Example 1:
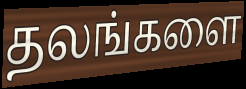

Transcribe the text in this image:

தலங்களை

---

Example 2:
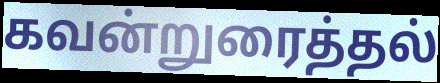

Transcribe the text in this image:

கவன்றுரைத்தல்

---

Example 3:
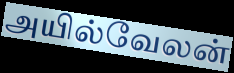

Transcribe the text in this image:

அயில்வேலன்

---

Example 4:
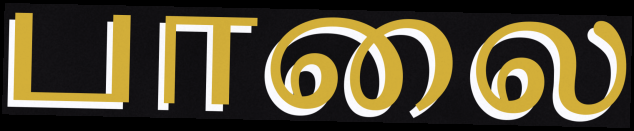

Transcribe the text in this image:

பாலை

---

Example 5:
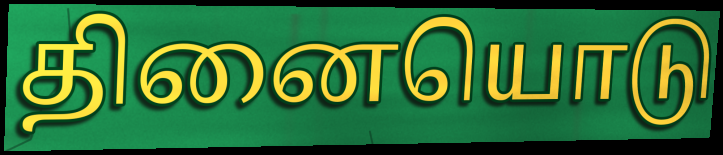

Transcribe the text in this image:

தினையொடு